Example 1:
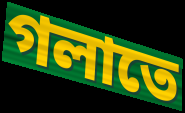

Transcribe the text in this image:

গলাতে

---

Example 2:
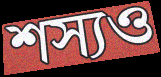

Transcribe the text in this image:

শস্যও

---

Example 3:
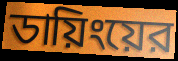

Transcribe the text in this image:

ডায়িংয়ের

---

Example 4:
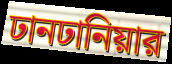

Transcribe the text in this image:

ঢানঢানিয়ার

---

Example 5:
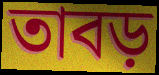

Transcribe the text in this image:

তাবড়